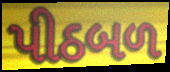
પીઠબળ